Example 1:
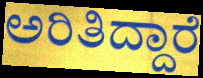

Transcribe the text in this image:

ಅರಿತಿದ್ದಾರೆ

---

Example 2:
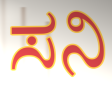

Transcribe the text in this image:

ಸನಿ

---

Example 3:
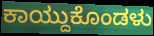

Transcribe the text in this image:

ಕಾಯ್ದುಕೊಂಡಳು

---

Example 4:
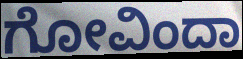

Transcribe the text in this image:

ಗೋವಿಂದಾ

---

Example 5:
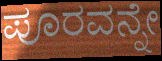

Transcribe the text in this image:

ಪೂರವನ್ನೇ